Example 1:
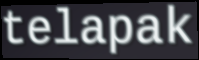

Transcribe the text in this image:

telapak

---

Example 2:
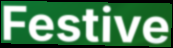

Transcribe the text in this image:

Festive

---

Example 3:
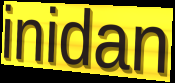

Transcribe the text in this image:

inidan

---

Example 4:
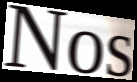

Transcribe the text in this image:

Nos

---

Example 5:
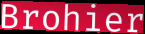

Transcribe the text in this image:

Brohier